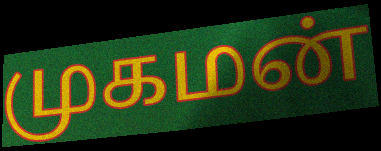
முகமன்